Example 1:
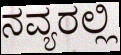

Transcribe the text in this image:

ನವ್ಯರಲ್ಲಿ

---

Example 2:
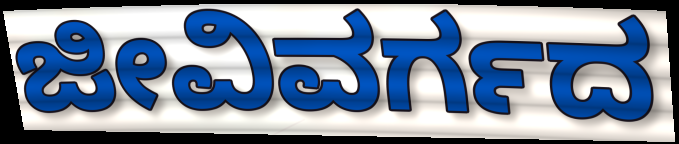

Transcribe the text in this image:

ಜೀವಿವರ್ಗದ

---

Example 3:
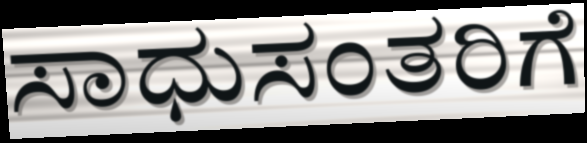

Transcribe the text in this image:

ಸಾಧುಸಂತರಿಗೆ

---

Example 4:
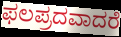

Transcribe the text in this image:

ಫಲಪ್ರದವಾದರೆ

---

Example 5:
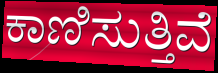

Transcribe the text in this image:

ಕಾಣಿಸುತ್ತಿವೆ